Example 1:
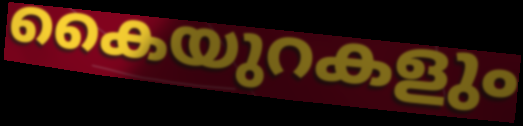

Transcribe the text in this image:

കൈയുറകളും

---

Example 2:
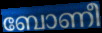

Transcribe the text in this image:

ബോണീ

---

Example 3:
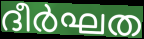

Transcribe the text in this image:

ദീർഘത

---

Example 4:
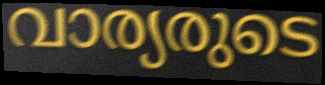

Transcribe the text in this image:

വാര്യരുടെ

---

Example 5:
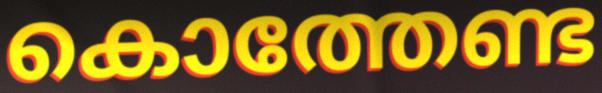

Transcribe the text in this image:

കൊത്തേണ്ട